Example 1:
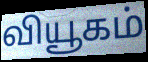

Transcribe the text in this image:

வியூகம்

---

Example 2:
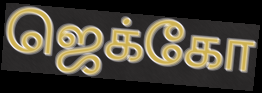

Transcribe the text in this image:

ஜெக்கோ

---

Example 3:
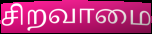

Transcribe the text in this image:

சிறவாமை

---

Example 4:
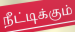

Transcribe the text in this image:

நீட்டிக்கும்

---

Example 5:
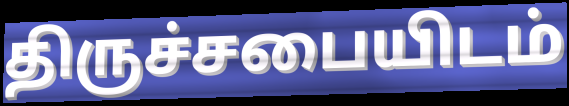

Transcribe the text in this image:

திருச்சபையிடம்